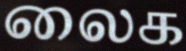
லைக